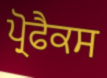
ਪ੍ਰੋਫੈਕਸ